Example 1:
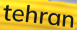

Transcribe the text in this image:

tehran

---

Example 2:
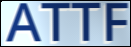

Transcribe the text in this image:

ATTF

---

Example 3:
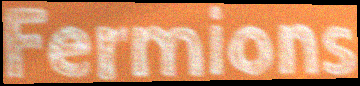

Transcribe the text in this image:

Fermions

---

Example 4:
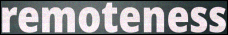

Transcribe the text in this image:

remoteness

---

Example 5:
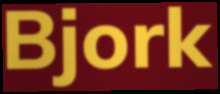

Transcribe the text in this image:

Bjork